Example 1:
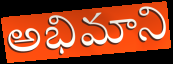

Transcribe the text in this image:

అభిమాని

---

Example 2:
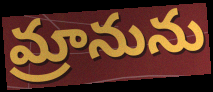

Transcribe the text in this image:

మ్రానును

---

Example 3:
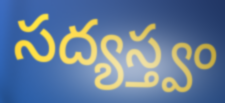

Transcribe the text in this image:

సద్యస్త్వం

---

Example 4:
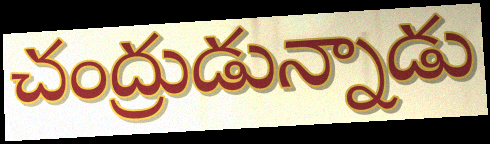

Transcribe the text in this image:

చంద్రుడున్నాడు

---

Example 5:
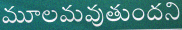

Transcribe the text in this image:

మూలమవుతుందని